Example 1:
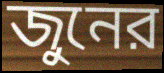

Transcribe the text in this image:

জুনের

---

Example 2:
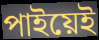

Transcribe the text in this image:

পাইয়েই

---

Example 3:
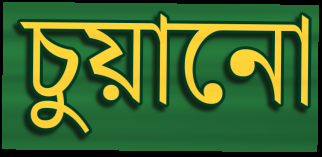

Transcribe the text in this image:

চুয়ানো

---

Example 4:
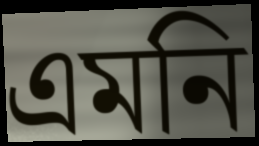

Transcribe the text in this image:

এমনি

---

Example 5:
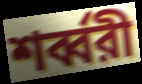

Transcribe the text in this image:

শর্ব্বরী